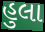
હુલા